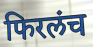
फिरलंच